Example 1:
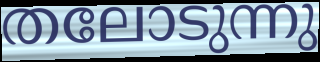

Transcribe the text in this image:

തലോടുന്നു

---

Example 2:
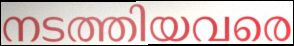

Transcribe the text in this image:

നടത്തിയവരെ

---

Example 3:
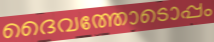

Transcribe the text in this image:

ദൈവത്തോടൊപ്പം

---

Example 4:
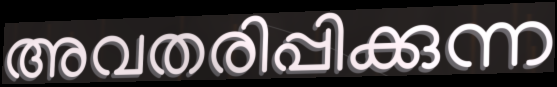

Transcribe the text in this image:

അവതരിപ്പിക്കുന്ന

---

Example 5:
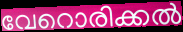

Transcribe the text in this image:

വേറൊരിക്കൽ